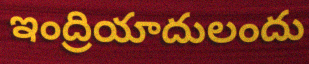
ఇంద్రియాదులందు